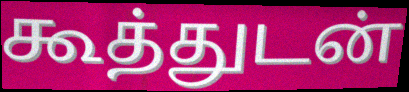
கூத்துடன்